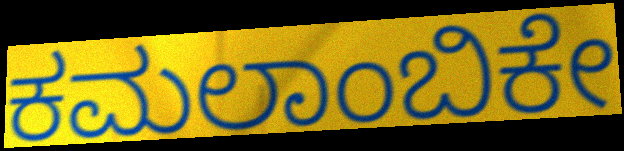
ಕಮಲಾಂಬಿಕೇ